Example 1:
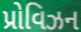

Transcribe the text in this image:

પ્રોવિઝન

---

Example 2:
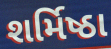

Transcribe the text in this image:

શર્મિષ્ઠા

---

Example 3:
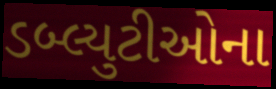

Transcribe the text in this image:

ડબ્લ્યુટીઓના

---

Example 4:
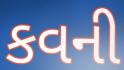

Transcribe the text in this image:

કવની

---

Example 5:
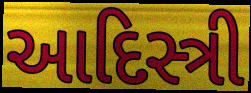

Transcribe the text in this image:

આદિસ્ત્રી